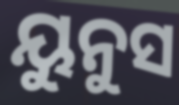
ୟୁନୁସ